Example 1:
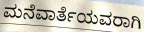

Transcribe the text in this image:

ಮನೆವಾರ್ತೆಯವರಾಗಿ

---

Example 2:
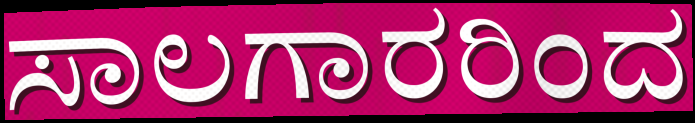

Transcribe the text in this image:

ಸಾಲಗಾರರಿಂದ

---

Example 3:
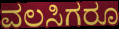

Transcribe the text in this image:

ವಲಸಿಗರೂ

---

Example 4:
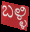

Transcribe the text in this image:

ಬಳ್ಳಿ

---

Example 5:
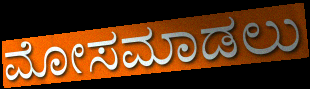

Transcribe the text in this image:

ಮೋಸಮಾಡಲು